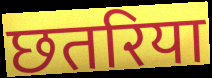
छतरिया